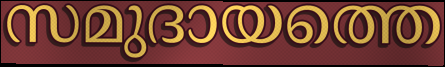
സമുദായത്തെ